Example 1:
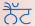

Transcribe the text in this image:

ਨੈੱਟ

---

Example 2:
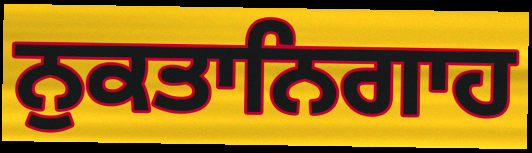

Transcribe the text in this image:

ਨੁਕਤਾਨਿਗਾਹ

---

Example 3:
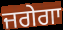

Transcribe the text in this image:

ਜਗੇਗਾ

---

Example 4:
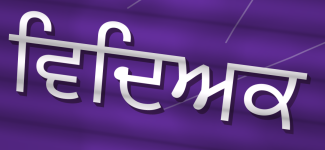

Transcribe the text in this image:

ਵਿਦਿਅਕ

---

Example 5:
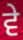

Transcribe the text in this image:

ਵੇ